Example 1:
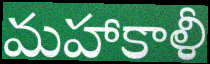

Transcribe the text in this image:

మహాకాళీ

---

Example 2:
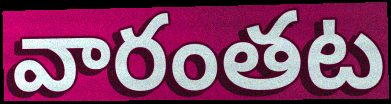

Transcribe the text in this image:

వారంతట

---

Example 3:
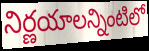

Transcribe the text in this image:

నిర్ణయాలన్నింటిలో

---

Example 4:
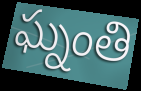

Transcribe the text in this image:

ఘ్నంతి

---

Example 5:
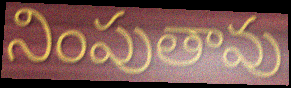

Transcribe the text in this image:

నింపుతావు